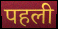
पहली